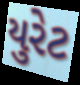
યુરેટ